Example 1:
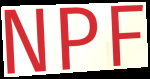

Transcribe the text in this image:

NPF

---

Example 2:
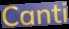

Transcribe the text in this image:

Canti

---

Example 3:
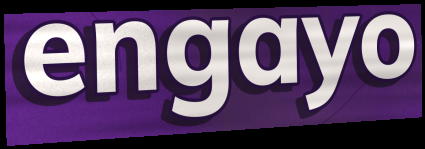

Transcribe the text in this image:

engayo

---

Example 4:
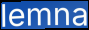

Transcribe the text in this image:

lemna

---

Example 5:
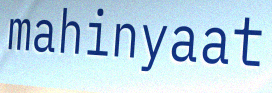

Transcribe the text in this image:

mahinyaat